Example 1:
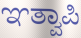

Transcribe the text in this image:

ಞತ್ವಾಪಿ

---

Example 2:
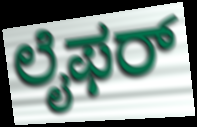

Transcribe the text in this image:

ಲೈಫರ್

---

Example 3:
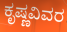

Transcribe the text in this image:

ಕೃಷ್ಣವಿವರ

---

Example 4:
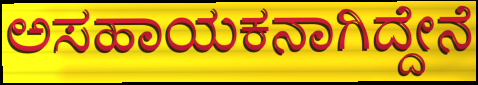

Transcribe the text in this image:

ಅಸಹಾಯಕನಾಗಿದ್ದೇನೆ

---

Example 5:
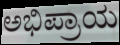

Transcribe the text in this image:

ಅಭಿಪ್ರಾಯ